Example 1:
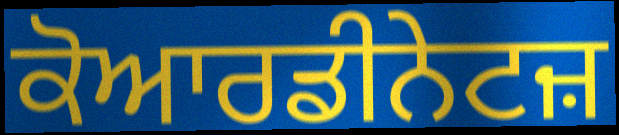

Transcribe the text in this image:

ਕੋਆਰਡੀਨੇਟਜ਼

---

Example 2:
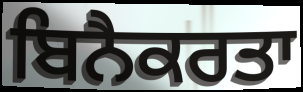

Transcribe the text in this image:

ਬਿਨੈਕਰਤਾ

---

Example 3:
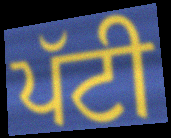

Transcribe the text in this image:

ਪੱਟੀ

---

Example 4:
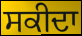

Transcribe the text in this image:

ਸਕੀਦਾ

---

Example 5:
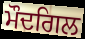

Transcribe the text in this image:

ਮੌਦਗਿਲ